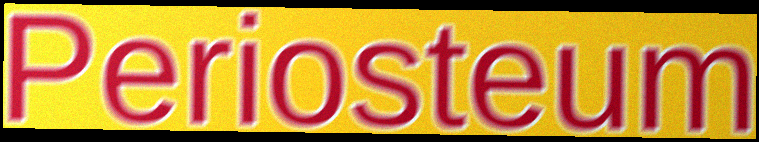
Periosteum